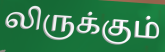
லிருக்கும்